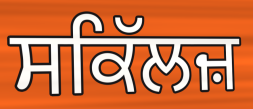
ਸਕਿੱਲਜ਼